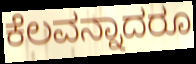
ಕೆಲವನ್ನಾದರೂ